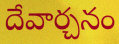
దేవార్చనం